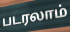
படரலாம்